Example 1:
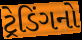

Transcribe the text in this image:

ટ્રેડિંગનો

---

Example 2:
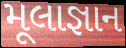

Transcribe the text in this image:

મૂલાજ્ઞાન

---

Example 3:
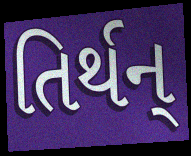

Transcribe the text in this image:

તિર્થન્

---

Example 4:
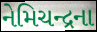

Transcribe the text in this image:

નેમિચન્દ્રના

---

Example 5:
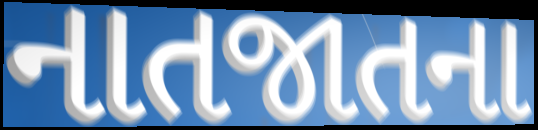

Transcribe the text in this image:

નાતજાતના